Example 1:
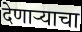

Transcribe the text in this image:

देणार्‍याचा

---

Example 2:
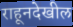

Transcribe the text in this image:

राहूनदेखील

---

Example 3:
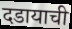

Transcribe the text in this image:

दडायाची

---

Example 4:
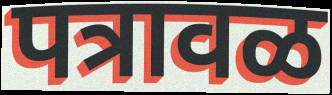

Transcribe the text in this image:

पत्रावळ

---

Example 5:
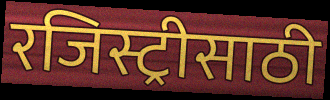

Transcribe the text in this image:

रजिस्ट्रीसाठी